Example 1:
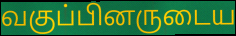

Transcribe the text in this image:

வகுப்பினருடைய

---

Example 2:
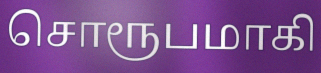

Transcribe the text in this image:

சொரூபமாகி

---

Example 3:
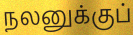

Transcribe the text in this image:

நலனுக்குப்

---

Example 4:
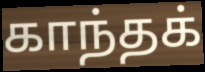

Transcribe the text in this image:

காந்தக்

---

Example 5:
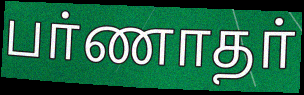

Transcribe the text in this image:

பர்ணாதர்